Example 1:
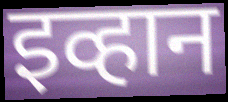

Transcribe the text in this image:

इव्हान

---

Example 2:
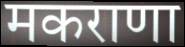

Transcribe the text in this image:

मकराणा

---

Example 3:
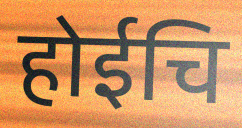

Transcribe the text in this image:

होईचि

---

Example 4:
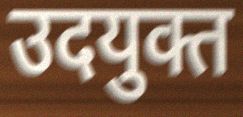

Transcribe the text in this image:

उदयुक्त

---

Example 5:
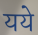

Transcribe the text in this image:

यये